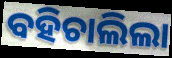
ବହିଚାଲିଲା